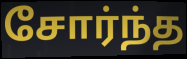
சோர்ந்த